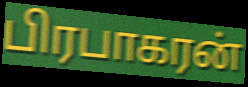
பிரபாகரன்